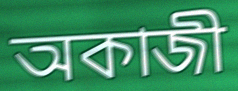
অকাজী